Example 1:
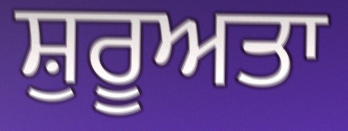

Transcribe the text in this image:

ਸ਼ੁਰੂਅਤਾ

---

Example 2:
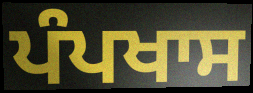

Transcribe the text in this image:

ਪੰਪਖਾਸ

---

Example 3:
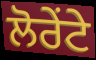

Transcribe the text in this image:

ਲੋਰੇਂਟੇ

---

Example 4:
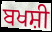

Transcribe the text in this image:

ਬਖਸ਼ੀ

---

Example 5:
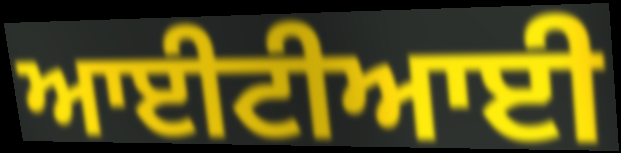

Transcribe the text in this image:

ਆਈਟੀਆਈ